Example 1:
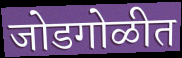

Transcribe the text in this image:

जोडगोळीत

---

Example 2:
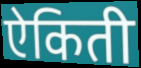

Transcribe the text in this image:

ऐकिती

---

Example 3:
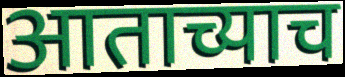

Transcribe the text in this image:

आताच्याच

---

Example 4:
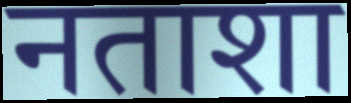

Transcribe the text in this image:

नताशा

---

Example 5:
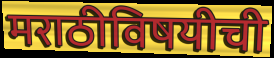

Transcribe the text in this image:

मराठीविषयीची